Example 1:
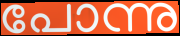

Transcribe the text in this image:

പോന്നു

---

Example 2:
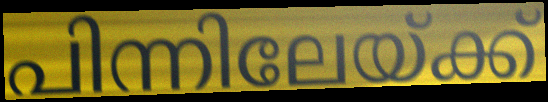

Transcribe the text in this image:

പിന്നിലേയ്ക്ക്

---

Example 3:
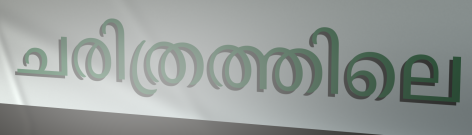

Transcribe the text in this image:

ചരിത്രത്തിലെ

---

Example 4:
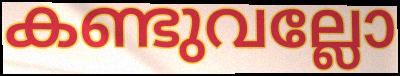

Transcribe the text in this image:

കണ്ടുവല്ലോ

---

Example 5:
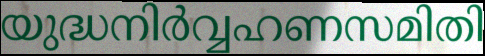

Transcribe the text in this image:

യുദ്ധനിർവ്വഹണസമിതി